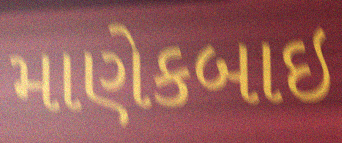
માણેકબાઇ